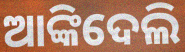
ଆଙ୍କିଦେଲି